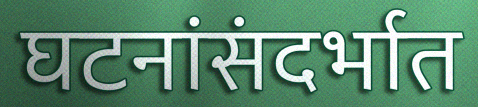
घटनांसंदर्भात